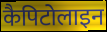
कैपिटोलाइन